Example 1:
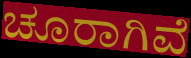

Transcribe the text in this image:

ಚೂರಾಗಿವೆ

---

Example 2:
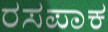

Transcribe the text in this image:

ರಸಪಾಕ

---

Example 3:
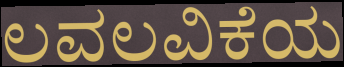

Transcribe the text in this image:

ಲವಲವಿಕೆಯ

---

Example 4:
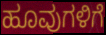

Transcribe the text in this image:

ಹೂವುಗಳಿಗೆ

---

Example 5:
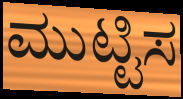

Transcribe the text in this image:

ಮುಟ್ಟಿಸ